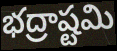
భద్రాష్టమి